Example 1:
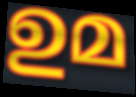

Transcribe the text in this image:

ഉമ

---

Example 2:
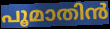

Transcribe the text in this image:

പൂമാതിൻ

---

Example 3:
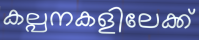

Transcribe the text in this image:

കല്പനകളിലേക്ക്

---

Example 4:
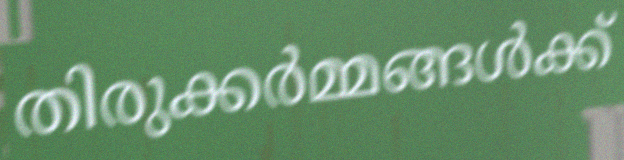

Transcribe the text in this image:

തിരുക്കർമ്മങ്ങൾക്ക്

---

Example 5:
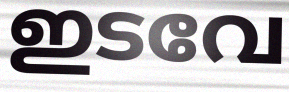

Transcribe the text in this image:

ഇടവേ